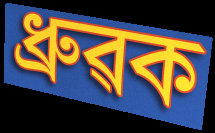
ধ্ৰুৱক